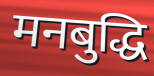
मनबुद्धि